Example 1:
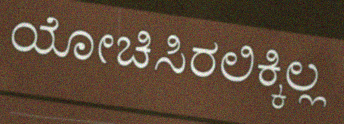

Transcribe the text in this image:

ಯೋಚಿಸಿರಲಿಕ್ಕಿಲ್ಲ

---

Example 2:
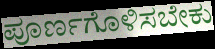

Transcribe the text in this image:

ಪೂರ್ಣಗೊಳಿಸಬೇಕು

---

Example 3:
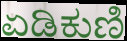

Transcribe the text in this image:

ಏಡಿಕುಣಿ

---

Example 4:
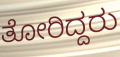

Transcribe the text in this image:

ತೋರಿದ್ದರು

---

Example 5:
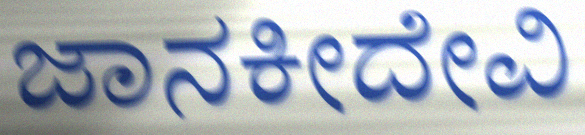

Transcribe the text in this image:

ಜಾನಕೀದೇವಿ